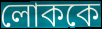
লোককে